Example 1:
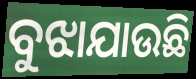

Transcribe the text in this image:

ବୁଝାଯାଉଛି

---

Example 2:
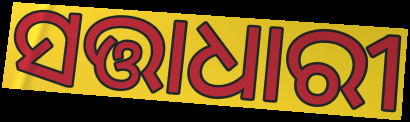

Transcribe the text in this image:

ସତ୍ତାଧାରୀ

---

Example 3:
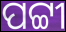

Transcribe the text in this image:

ପଟ୍ଟୀ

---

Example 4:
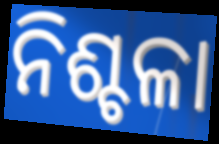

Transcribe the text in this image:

ନିଶ୍ଚଳା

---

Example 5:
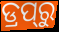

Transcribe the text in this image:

ଡ୍ରପ୍‍ରୁ